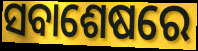
ସବାଶେଷରେ